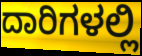
ದಾರಿಗಳಲ್ಲಿ